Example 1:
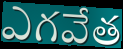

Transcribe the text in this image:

ఎగవేత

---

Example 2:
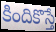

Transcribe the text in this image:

కిందికొస్తే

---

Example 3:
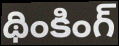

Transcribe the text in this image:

థింకింగ్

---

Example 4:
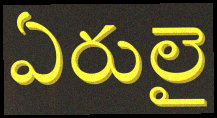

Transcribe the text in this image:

ఏరులై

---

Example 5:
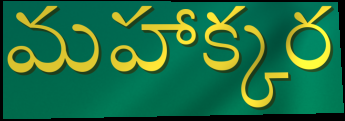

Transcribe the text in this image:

మహాక్కర